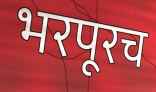
भरपूरच